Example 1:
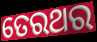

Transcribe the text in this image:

ତେରଥର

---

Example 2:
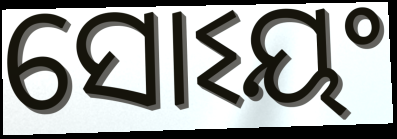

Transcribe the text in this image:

ସୋଽୟଂ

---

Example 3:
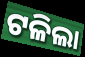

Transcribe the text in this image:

ଟଳିଲା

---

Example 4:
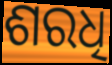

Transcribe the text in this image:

ଶରଧି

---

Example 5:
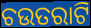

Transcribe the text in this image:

ଚଉତରାଟି